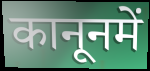
कानूनमें